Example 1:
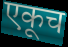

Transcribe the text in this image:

एकूच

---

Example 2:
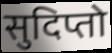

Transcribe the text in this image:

सुदिप्तो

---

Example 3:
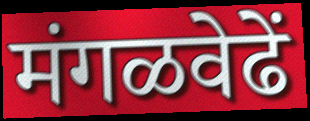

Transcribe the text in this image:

मंगळवेढें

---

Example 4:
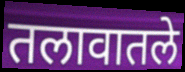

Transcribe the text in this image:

तलावातले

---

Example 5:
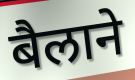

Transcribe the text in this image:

बैलाने